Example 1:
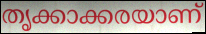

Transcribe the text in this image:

തൃക്കാക്കരയാണ്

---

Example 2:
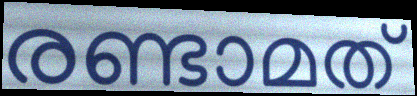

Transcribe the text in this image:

രണ്ടാമത്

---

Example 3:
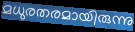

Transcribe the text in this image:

മധുരതരമായിരുന്നു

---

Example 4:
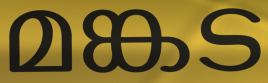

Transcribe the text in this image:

മങ്കട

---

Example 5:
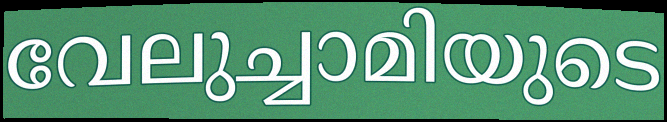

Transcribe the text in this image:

വേലുച്ചാമിയുടെ